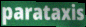
parataxis